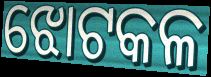
ଝୋଟକଳ